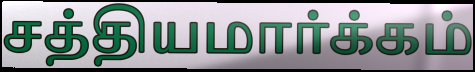
சத்தியமார்க்கம்